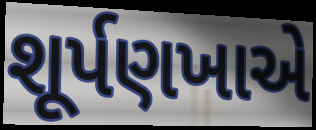
શૂર્પણખાએ